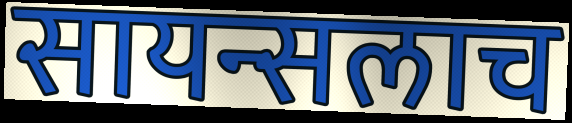
सायन्सलाच